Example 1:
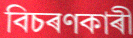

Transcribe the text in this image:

বিচৰণকাৰী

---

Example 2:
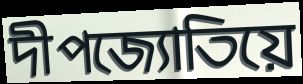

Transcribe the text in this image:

দীপজ্যোতিয়ে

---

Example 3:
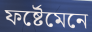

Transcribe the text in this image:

ফৰ্ষ্টেমেনে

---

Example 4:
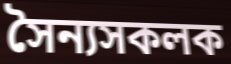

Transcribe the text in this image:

সৈন্যসকলক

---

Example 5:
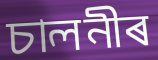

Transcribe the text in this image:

চালনীৰ